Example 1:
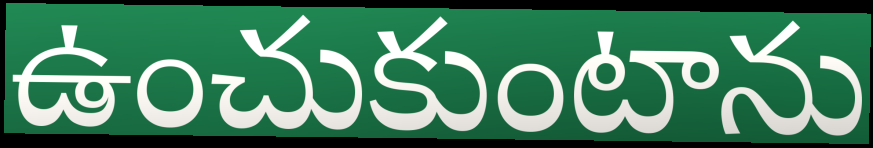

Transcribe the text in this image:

ఉంచుకుంటాను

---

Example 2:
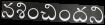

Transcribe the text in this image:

నశించిందని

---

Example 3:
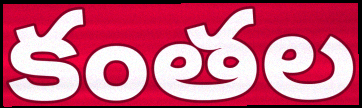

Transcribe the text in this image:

కంతల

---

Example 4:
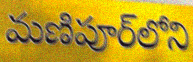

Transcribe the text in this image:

మణిపూర్‌లోని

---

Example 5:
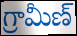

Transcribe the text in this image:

గ్రామీణ్